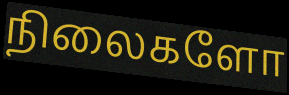
நிலைகளோ